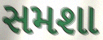
સમશા